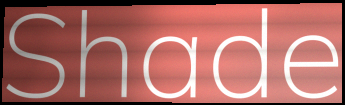
Shade